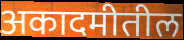
अकादमीतील